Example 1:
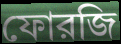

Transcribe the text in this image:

ফোরজি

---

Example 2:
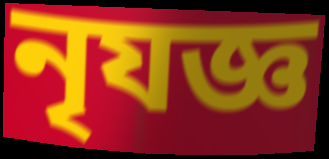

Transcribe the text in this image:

নৃযজ্ঞ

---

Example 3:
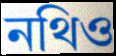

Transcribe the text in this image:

নথিও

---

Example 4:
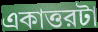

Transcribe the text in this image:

একাত্তরটা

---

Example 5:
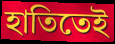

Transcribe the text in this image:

হাতিতেই